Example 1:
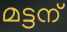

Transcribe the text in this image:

മട്ടന്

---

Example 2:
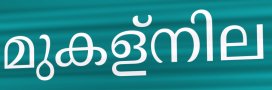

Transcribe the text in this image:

മുകള്നില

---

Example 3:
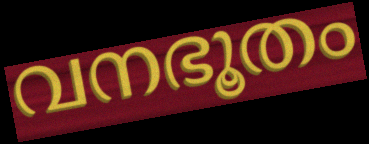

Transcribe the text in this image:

വനഭൂതം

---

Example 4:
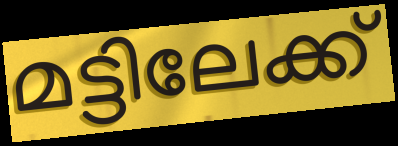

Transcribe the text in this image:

മട്ടിലേക്ക്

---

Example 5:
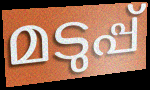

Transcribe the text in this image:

മടുപ്പ്